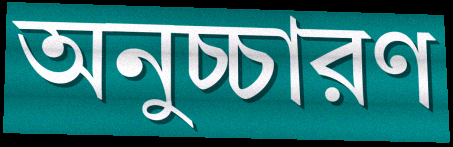
অনুচ্চারণ